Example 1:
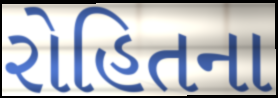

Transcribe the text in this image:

રોહિતના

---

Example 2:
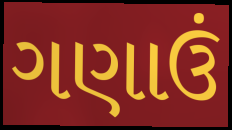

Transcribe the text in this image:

ગણાઉં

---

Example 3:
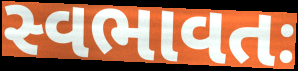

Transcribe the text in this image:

સ્વભાવતઃ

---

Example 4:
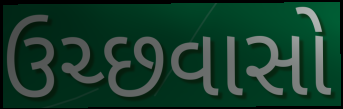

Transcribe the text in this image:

ઉચ્છવાસો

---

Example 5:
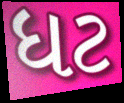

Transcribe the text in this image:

ધટ